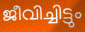
ജീവിച്ചിട്ടും